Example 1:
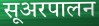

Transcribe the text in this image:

सूअरपालन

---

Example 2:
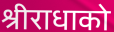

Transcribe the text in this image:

श्रीराधाको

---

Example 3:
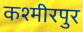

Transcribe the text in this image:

कश्मीरपुर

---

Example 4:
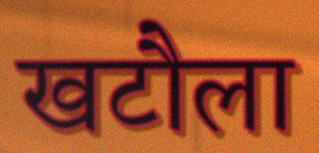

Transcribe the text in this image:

खटौला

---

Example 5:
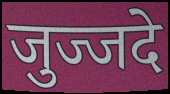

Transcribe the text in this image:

जुज्जदे